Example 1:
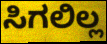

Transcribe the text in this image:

ಸಿಗಲಿಲ್ಲ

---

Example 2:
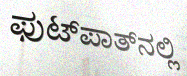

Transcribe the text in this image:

ಫುಟ್‌ಪಾತ್‌ನಲ್ಲಿ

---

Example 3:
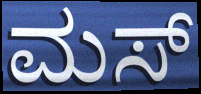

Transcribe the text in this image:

ಮಸ್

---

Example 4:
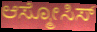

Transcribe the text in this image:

ಆಸ್ಮೋಸಿಸ್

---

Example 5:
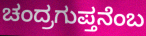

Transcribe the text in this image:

ಚಂದ್ರಗುಪ್ತನೆಂಬ